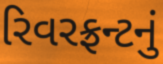
રિવરફ્રન્ટનું